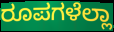
ರೂಪಗಳೆಲ್ಲಾ